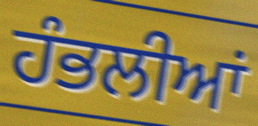
ਹੰਭਲੀਆਂ